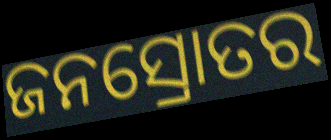
ଜନସ୍ରୋତର